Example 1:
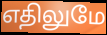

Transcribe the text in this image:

எதிலுமே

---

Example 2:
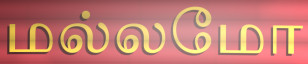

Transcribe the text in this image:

மல்லமோ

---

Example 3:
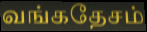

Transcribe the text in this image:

வங்கதேசம்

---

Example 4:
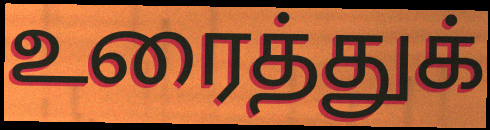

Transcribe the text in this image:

உரைத்துக்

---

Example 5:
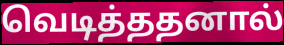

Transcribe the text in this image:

வெடித்ததனால்